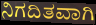
ನಿಗದಿತವಾಗಿ